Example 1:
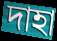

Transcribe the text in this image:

দাহা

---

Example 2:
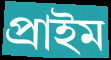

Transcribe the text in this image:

প্ৰাইম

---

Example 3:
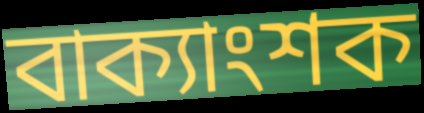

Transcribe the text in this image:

বাক্যাংশক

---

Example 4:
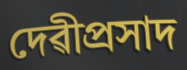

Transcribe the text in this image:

দেৱীপ্ৰসাদ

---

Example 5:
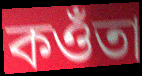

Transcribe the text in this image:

কওঁতা